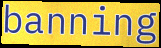
banning